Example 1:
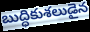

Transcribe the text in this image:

బుద్ధికుశలుడైన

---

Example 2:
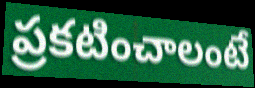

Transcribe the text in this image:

ప్రకటించాలంటే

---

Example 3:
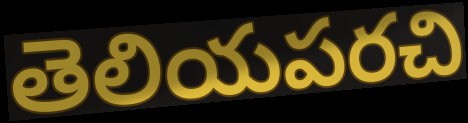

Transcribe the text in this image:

తెలియపరచి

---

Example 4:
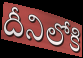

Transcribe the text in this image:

దీనిలోకి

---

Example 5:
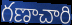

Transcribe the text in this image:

గణాచారి